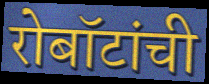
रोबॉटांची